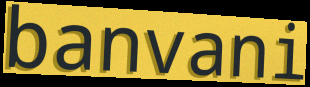
banvani